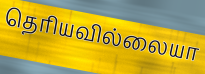
தெரியவில்லையா